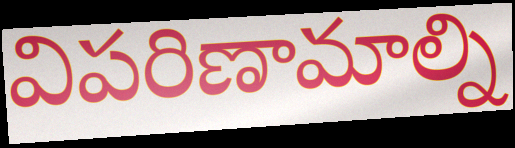
విపరిణామాల్ని